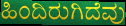
ಹಿಂದಿರುಗಿದೆವು